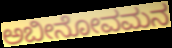
ಅಬೀನೋವಮನ